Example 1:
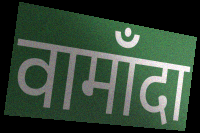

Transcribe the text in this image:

वामाँदा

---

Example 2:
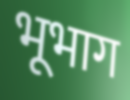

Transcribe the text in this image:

भूभाग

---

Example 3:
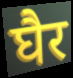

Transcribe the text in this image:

घैर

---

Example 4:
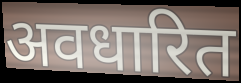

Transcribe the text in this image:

अवधारित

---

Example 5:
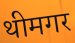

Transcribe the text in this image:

थीमगर